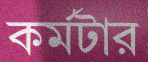
কর্মটার